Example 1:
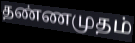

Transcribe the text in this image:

தண்ணமுதம்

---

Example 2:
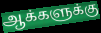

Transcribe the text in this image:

ஆக்களுக்கு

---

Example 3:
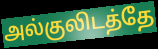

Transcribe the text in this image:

அல்குலிடத்தே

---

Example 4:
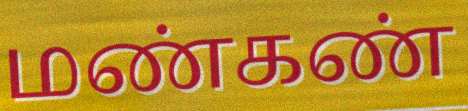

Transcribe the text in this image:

மண்கண்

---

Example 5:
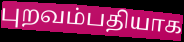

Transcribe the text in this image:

புறவம்பதியாக